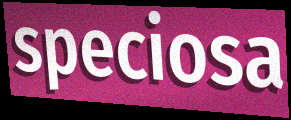
speciosa